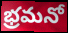
భ్రమనో